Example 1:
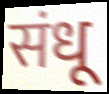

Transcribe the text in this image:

संधू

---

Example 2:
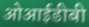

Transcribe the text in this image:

ओआईडीबी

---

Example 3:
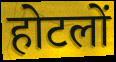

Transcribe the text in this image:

होटलों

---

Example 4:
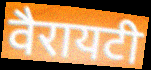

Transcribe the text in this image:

वैरायटी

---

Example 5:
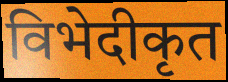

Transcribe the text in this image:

विभेदीकृत